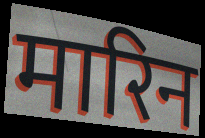
मारिन